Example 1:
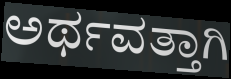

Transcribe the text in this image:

ಅರ್ಥವತ್ತಾಗಿ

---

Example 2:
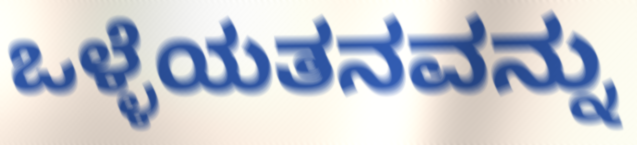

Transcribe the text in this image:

ಒಳ್ಳೆಯತನವನ್ನು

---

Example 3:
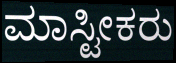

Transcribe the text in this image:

ಮಾಸ್ಟೀಕರು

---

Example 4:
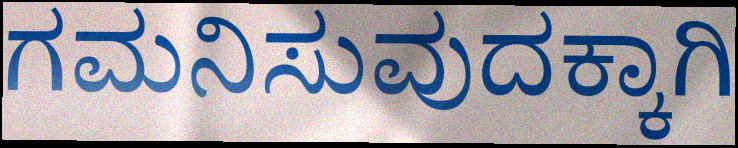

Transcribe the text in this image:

ಗಮನಿಸುವುದಕ್ಕಾಗಿ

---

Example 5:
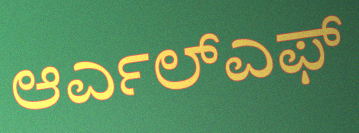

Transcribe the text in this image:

ಆರ್ಎಲ್ಎಫ್